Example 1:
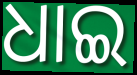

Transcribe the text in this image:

ଧାଇ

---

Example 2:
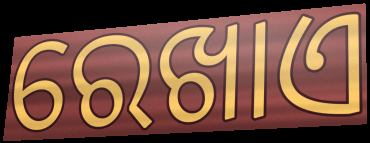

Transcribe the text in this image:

ରେଖାଏ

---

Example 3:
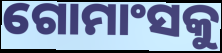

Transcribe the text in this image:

ଗୋମାଂସକୁ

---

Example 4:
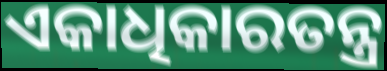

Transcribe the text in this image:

ଏକାଧିକାରତନ୍ତ୍ର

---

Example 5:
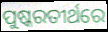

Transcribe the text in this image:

ପୁଷ୍କରତୀର୍ଥରେ